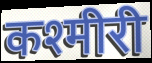
कश्मीरी